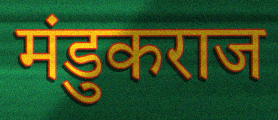
मंडुकराज